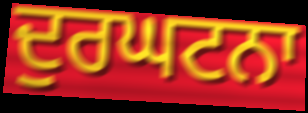
ਦੁਰਘਟਨਾ